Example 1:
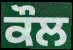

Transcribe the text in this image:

ਕੌਲ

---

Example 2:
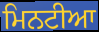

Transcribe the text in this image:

ਮਿਨਟੀਆ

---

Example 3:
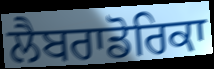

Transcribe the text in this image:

ਲੈਬਰਾਡੋਰਿਕਾ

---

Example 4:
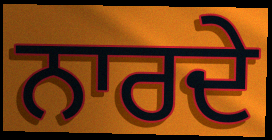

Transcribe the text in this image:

ਨਾਰਦੇ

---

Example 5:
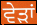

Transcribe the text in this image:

ਵੇੜਾਂ